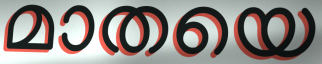
മാതയെ